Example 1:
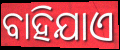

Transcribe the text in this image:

ବାହିଯାଏ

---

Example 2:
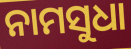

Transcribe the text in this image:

ନାମସୁଧା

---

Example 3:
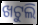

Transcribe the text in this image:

ଖଟୁଲି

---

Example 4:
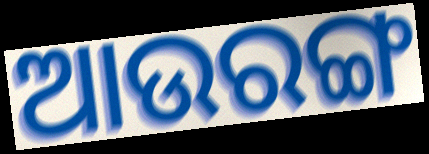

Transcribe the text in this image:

ଆଉରଙ୍ଗ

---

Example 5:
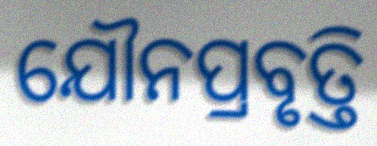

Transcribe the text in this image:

ଯୌନପ୍ରବୃତ୍ତି